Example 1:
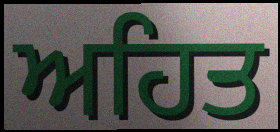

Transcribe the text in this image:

ਅਹਿਤ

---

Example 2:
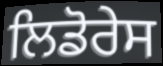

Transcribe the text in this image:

ਲਿਡੋਰੇਸ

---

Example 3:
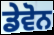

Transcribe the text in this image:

ਡੇਵੋਨ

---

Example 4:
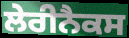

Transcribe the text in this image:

ਲੇਰੀਨੈਕਸ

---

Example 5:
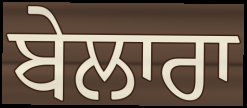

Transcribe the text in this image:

ਬੇਲਾਰਾ